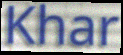
Khar